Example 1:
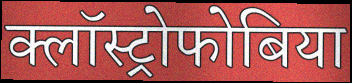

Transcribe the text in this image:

क्लॉस्ट्रोफोबिया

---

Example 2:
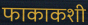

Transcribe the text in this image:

फाकाकशी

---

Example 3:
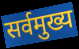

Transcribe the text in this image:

सर्वमुख्य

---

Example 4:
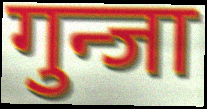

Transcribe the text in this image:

गुन्जा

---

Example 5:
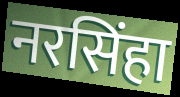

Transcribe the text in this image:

नरसिंहा